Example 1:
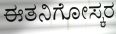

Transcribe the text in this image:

ಈತನಿಗೋಸ್ಕರ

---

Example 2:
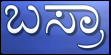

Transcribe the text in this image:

ಬಸ್ರಾ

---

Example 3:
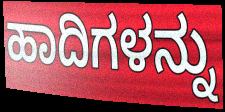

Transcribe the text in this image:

ಹಾದಿಗಳನ್ನು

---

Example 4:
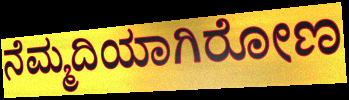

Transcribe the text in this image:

ನೆಮ್ಮದಿಯಾಗಿರೋಣ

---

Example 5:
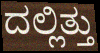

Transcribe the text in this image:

ದಲ್ಲಿತ್ತು